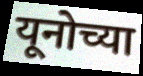
यूनोच्या